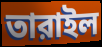
তারাইল